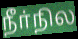
நீர்நில